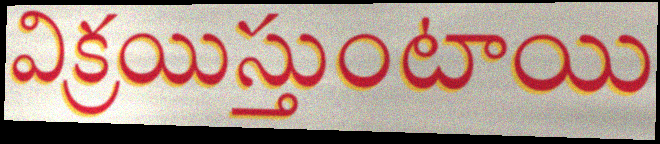
విక్రయిస్తుంటాయి